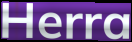
Herra